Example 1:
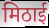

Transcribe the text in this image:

मिठाई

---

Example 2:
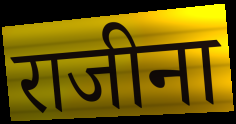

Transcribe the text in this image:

राजीना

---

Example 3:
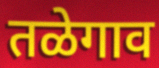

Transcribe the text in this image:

तळेगाव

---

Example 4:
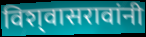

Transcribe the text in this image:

विश्वासरावांनी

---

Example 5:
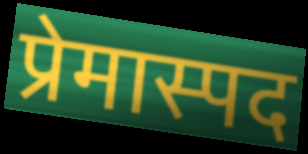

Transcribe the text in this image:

प्रेमास्पद